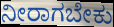
ನೀರಾಗಬೇಕು